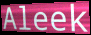
Aleek